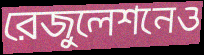
রেজুলেশনেও